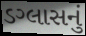
ડગ્લાસનું